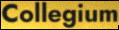
Collegium